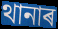
থানাৰ